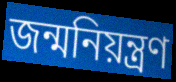
জন্মনিয়ন্ত্রণ